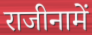
राजीनामें